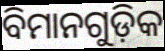
ବିମାନଗୁଡ଼ିକ